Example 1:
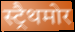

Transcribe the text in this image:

स्ट्रैथमोर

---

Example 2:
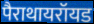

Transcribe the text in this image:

पैराथायरॉयड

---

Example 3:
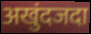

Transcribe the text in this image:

अखुंदजदा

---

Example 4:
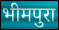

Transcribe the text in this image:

भीमपुरा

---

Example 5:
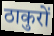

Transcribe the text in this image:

ठाकुरों